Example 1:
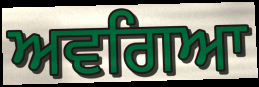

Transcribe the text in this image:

ਅਵਗਿਆ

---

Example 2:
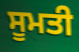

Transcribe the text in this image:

ਸੂਮਤੀ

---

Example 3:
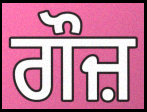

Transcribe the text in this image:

ਗੌਜ਼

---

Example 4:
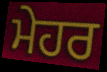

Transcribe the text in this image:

ਮੇਹਰ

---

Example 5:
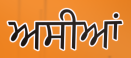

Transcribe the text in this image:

ਅਸੀਆਂ